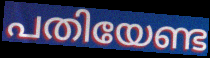
പതിയേണ്ട